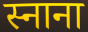
स्नाना